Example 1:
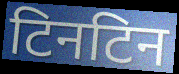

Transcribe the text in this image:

टिनटिन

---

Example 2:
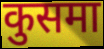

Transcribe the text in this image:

कुसमा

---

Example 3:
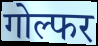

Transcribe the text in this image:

गोल्फर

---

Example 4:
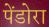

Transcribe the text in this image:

पेंडोरा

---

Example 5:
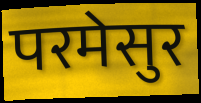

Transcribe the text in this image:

परमेसुर